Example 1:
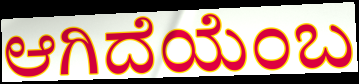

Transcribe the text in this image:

ಆಗಿದೆಯೆಂಬ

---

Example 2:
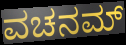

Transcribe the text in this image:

ವಚನಮ್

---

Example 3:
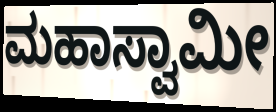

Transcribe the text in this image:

ಮಹಾಸ್ವಾಮೀ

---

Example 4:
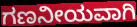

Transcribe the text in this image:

ಗಣನೀಯವಾಗಿ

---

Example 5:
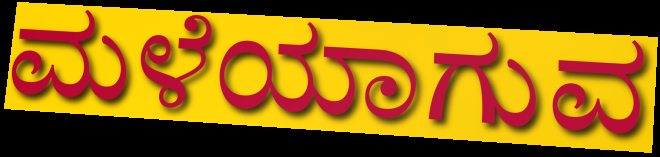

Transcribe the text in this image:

ಮಳೆಯಾಗುವ